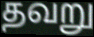
தவறு